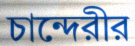
চান্দেরীর